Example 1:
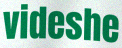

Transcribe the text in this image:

videshe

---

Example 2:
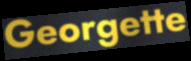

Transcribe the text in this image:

Georgette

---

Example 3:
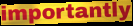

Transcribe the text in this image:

importantly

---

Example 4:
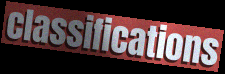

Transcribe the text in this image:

classifications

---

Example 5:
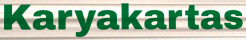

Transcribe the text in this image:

Karyakartas